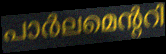
പാർലമെന്ററി